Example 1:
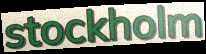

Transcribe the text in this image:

stockholm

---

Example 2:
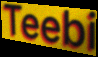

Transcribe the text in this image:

Teebi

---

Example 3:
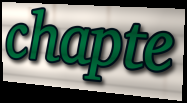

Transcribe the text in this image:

chapte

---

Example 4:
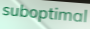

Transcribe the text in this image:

suboptimal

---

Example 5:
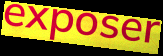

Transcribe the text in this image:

exposer